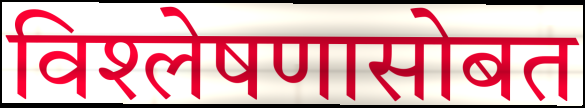
विश्लेषणासोबत